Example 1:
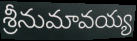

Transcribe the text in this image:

శ్రీనుమావయ్య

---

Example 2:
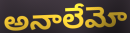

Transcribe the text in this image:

అనాలేమో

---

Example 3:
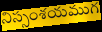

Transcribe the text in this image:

నిస్సంశయముగ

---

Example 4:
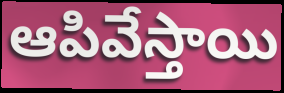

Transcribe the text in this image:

ఆపివేస్తాయి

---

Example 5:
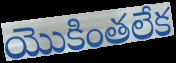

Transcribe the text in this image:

యొకింతలేక